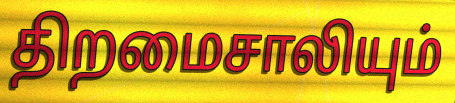
திறமைசாலியும்